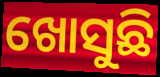
ଖୋସୁଛି